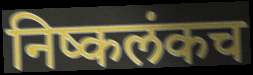
निष्कलंकच